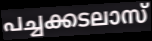
പച്ചക്കടലാസ്